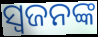
ସ୍ଵଜନଙ୍କ